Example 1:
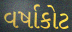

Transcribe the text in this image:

વર્ષાકોટ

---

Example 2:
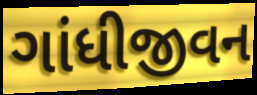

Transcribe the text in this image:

ગાંધીજીવન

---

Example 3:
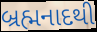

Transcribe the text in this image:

બ્રહ્મનાદથી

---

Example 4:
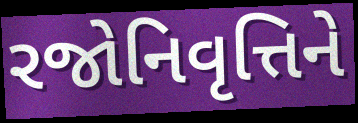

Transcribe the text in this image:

રજોનિવૃત્તિને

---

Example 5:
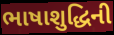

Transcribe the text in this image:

ભાષાશુદ્ધિની